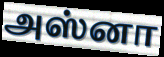
அஸ்னா